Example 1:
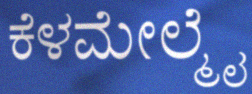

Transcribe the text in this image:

ಕೆಳಮೇಲ್ಮೈ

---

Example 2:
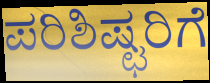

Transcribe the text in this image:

ಪರಿಶಿಷ್ಟರಿಗೆ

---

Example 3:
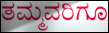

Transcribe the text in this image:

ತಮ್ಮವರಿಗೂ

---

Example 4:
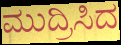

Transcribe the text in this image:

ಮುದ್ರಿಸಿದ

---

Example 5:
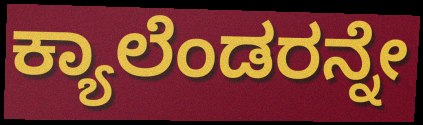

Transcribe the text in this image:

ಕ್ಯಾಲೆಂಡರನ್ನೇ